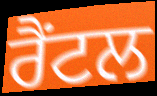
ਰੈਂਟਲ